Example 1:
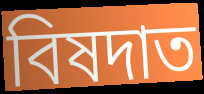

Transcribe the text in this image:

বিষদাত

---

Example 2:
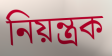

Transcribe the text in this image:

নিয়ন্ত্রক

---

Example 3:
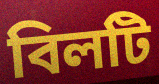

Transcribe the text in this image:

বিলটি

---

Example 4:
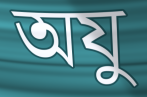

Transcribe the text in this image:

অযু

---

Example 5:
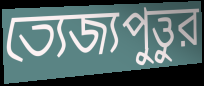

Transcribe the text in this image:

ত্যেজ্যপুত্তুর